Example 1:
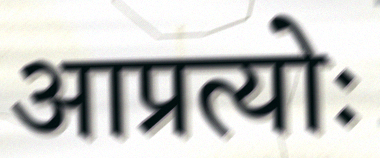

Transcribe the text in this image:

आप्रत्योः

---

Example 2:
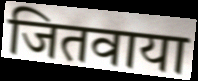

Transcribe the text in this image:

जितवाया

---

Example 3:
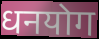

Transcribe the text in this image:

धनयोग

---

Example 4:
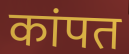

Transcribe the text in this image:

कांपत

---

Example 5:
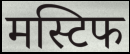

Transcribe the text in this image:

मस्टिफ